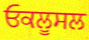
ਓਕਲੂਸਲ